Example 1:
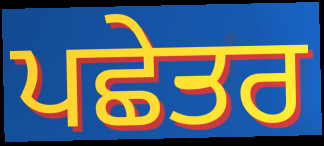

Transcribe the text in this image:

ਪਛੇਤਰ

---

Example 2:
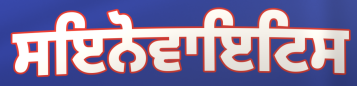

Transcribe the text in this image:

ਸਇਨੋਵਾਇਟਿਸ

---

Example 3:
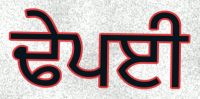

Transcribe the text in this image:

ਢੇਪਈ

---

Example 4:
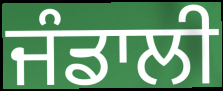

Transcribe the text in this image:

ਜੰਡਾਲੀ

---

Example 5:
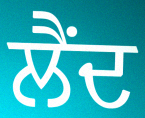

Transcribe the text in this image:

ਲੈਂਦ